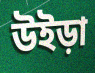
উইড়া